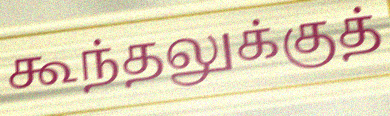
கூந்தலுக்குத்